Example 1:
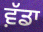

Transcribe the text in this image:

ਵ਼ੱਡਾ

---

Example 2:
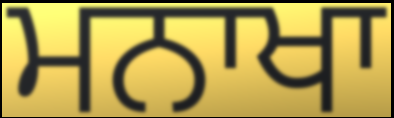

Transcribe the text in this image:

ਮਨਾਖਾ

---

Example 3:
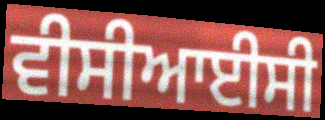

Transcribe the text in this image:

ਵੀਸੀਆਈਸੀ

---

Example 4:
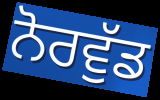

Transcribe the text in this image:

ਨੋਰਵੁੱਡ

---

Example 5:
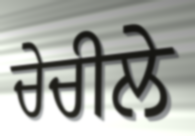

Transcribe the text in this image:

ਚੇਚੀਲੇ